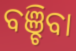
ବଞ୍ଚିବା